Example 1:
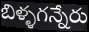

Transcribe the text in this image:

బిళ్ళగన్నేరు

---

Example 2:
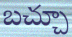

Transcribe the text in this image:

బచ్చూ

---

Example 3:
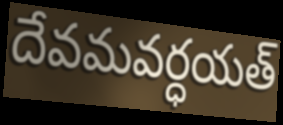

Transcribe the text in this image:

దేవమవర్ధయత్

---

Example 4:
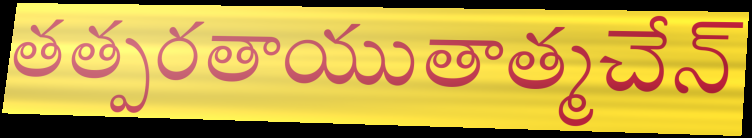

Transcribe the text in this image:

తత్పరతాయుతాత్మచేన్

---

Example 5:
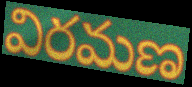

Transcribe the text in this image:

విరమణ